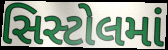
સિસ્ટોલમાં